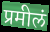
प्रमीलं